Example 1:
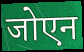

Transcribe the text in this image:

जोएन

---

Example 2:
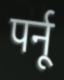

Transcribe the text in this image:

पर्नू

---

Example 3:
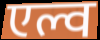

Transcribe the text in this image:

एल्व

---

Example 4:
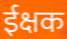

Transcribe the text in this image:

ईक्षक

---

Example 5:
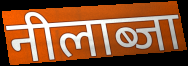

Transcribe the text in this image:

नीलाब्जा